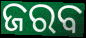
ଜରବ